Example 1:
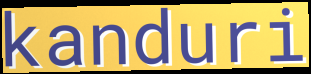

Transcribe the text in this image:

kanduri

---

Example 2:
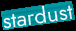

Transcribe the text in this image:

stardust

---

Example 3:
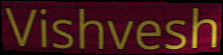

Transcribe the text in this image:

Vishvesh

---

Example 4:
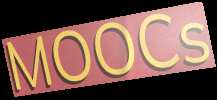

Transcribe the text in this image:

MOOCs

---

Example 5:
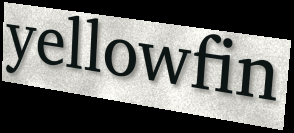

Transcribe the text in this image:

yellowfin